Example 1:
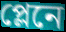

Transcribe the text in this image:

প্লেনে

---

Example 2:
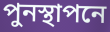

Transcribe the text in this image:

পুনস্থাপনে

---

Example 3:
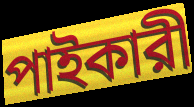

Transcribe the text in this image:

পাইকারী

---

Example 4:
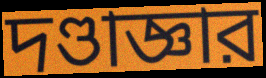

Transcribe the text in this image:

দণ্ডাজ্ঞার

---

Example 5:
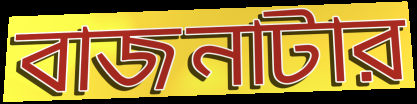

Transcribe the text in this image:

বাজনাটার